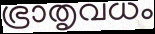
ഭ്രാതൃവധം